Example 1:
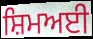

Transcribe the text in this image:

ਸ਼ਿਮਅਈ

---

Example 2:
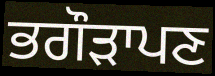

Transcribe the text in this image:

ਭਗੌੜਾਪਣ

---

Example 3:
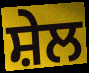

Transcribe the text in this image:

ਸ਼ੇਲ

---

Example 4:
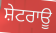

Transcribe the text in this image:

ਸ਼ੇਟਰਾਊ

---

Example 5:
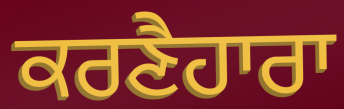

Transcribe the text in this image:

ਕਰਣੈਹਾਰਾ